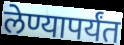
लेण्यापर्यंत